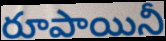
రూపాయినీ